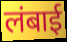
लंबाई